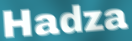
Hadza